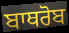
ਬਾਥਰੋਬ